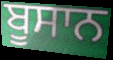
ਬੂਸਾਨ